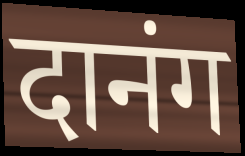
दानंग